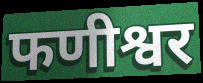
फणीश्वर